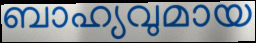
ബാഹ്യവുമായ